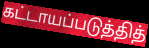
கட்டாயப்படுத்தித்